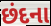
છંદના